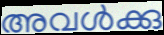
അവൾക്കു